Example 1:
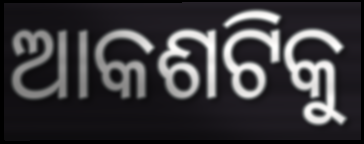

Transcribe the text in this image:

ଆକଶଟିକୁ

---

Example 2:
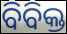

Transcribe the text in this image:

ବିବିକ୍ତ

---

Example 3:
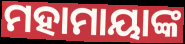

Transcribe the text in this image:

ମହାମାୟାଙ୍କ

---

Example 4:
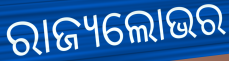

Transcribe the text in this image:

ରାଜ୍ୟଲୋଭର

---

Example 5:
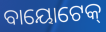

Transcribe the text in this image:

ବାୟୋଟେକ୍